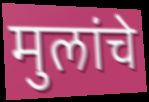
मुलांचे